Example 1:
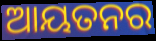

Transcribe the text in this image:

ଆୟତନର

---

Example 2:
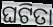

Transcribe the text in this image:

ଘଟିତା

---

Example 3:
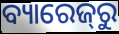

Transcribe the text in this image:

ବ୍ୟାରେଜ୍‌ରୁ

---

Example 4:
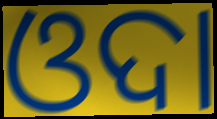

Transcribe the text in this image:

ଓଦା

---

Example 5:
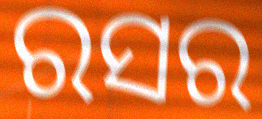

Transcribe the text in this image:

ରସର